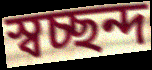
স্বচ্ছন্দ